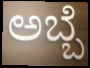
ಅಬ್ಬೆ